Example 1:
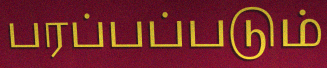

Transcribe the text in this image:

பரப்பப்படும்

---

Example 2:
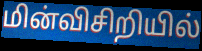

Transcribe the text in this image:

மின்விசிறியில்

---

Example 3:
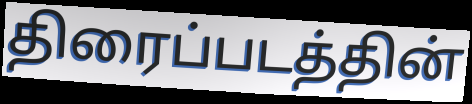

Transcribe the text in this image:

திரைப்படத்தின்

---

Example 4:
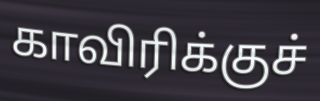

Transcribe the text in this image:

காவிரிக்குச்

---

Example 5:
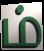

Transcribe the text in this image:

ம்